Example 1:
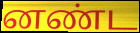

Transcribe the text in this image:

னண்ட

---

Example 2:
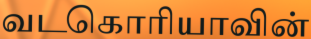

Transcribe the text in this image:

வடகொரியாவின்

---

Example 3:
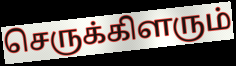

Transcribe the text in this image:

செருக்கிளரும்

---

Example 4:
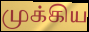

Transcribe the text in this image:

முக்கிய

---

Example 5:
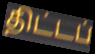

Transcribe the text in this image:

திட்டப்